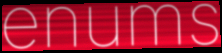
enums